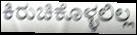
ಕಿರುಚಿಕೊಳ್ಳಲಿಲ್ಲ